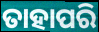
ତାହାପରି